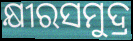
କ୍ଷୀରସମୁଦ୍ର